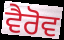
ਵੈਰੋਵ